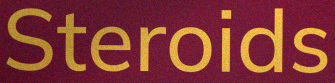
Steroids